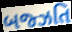
બજ્ઝતિ